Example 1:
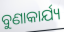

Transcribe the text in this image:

ବୁଣାକାର୍ଯ୍ୟ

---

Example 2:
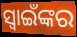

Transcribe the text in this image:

ସ୍ୱାଇଁଙ୍କର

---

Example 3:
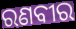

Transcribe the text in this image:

ରଣବୀର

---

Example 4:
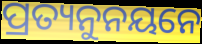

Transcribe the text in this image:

ପ୍ରତ୍ୟନୁନୟନେ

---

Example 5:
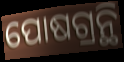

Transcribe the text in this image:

ପୋଷଗ୍ରନ୍ଥି